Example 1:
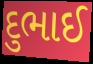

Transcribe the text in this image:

દુભાઈ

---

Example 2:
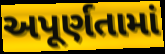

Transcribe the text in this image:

અપૂર્ણતામાં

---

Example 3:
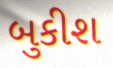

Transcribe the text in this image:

બુકીશ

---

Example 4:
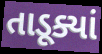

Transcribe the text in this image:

તાડૂક્યાં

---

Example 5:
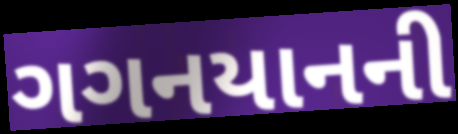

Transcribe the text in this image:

ગગનયાનની